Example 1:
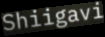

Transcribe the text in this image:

Shiigavi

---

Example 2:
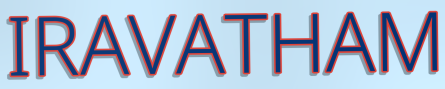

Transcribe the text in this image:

IRAVATHAM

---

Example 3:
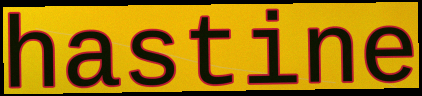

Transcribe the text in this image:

hastine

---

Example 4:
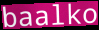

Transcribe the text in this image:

baalko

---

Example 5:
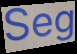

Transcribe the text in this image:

Seg